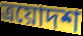
ত্ৰয়োদশ